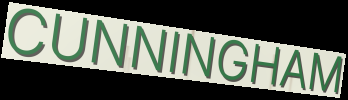
CUNNINGHAM